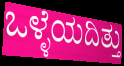
ಒಳ್ಳೆಯದಿತ್ತು